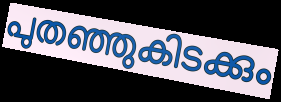
പുതഞ്ഞുകിടക്കും